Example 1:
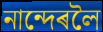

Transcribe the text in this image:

নান্দেৰলৈ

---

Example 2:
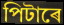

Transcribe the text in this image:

পিটাৰে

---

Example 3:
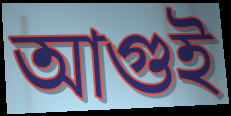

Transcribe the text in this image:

আগুই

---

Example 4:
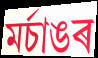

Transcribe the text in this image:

মৰ্চাঙৰ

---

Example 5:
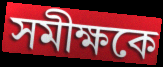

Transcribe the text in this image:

সমীক্ষকে